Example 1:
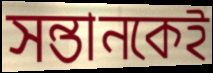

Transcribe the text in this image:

সন্তানকেই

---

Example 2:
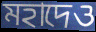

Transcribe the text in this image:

মহাদেও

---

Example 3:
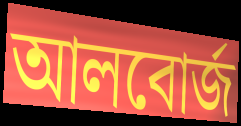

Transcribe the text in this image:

আলবোর্জ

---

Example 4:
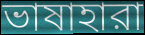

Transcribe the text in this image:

ভাষাহারা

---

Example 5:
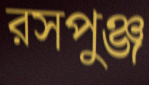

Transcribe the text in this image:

রসপুঞ্জ